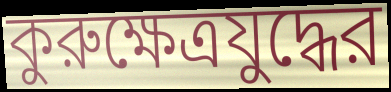
কুরুক্ষেত্রযুদ্ধের